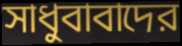
সাধুবাবাদের